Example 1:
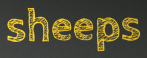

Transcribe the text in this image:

sheeps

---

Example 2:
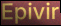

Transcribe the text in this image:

Epivir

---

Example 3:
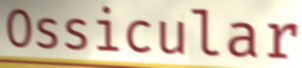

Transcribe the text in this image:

Ossicular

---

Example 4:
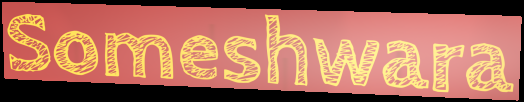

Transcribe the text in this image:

Someshwara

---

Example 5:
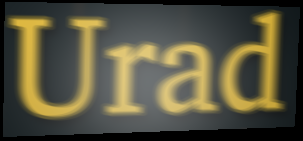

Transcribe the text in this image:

Urad